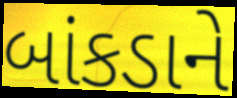
બાંકડાને